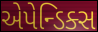
એપેન્ડિક્સ